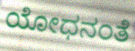
ಯೋಧನಂತೆ